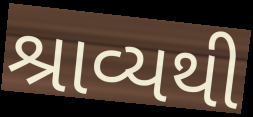
શ્રાવ્યથી